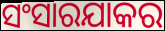
ସଂସାରଯାକର